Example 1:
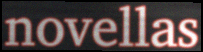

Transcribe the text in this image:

novellas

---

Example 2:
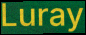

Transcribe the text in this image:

Luray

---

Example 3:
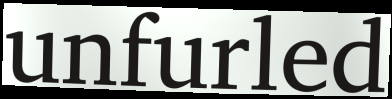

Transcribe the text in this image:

unfurled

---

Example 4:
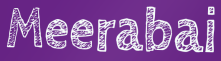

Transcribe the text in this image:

Meerabai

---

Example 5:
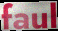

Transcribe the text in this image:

faul